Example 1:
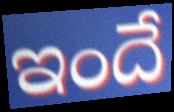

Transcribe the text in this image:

ఇందే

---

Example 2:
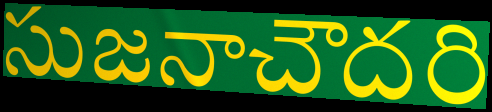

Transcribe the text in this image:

సుజనాచౌదరి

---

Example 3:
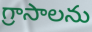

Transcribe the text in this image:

గ్రాసాలను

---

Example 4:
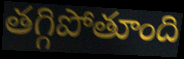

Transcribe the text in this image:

తగ్గిపోతూంది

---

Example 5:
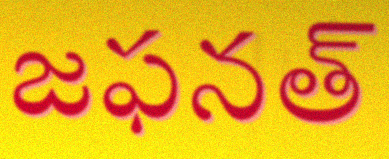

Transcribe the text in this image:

జఫనత్